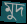
মুদ